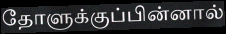
தோளுக்குப்பின்னால்